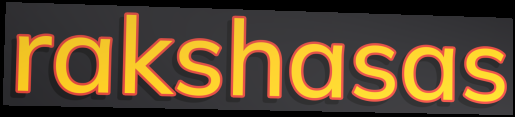
rakshasas